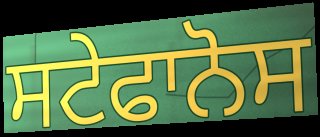
ਸਟੇਫਾਨੋਸ